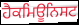
ਹੈਕਮਿਊਨਿਸਟ